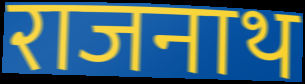
राजनाथ